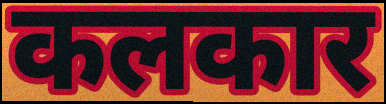
कलकार